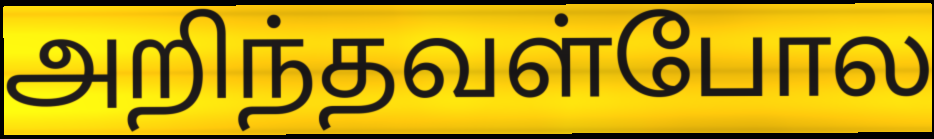
அறிந்தவள்போல